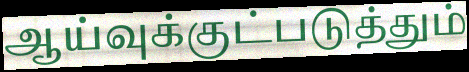
ஆய்வுக்குட்படுத்தும்